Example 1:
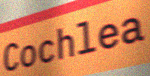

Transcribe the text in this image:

Cochlea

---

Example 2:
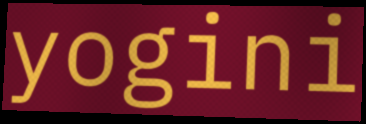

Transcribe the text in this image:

yogini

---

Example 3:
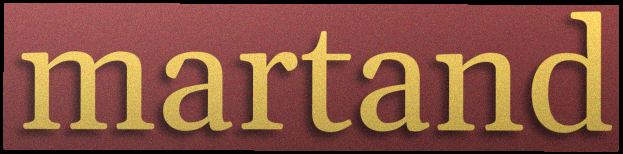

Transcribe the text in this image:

martand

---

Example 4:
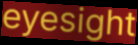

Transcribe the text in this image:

eyesight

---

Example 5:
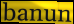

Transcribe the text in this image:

banun